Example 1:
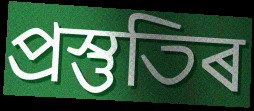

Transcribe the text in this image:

প্ৰস্তুতিৰ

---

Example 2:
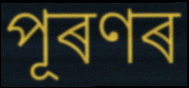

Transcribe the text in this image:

পূৰণৰ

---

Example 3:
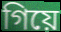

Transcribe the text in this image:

গিয়ে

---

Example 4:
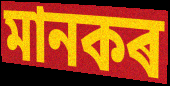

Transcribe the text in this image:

মানকৰ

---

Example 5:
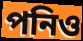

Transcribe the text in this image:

পনিও